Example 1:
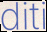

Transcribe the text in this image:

diti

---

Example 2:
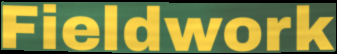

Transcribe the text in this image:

Fieldwork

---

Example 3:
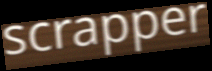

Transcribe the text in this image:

scrapper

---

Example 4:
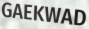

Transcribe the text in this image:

GAEKWAD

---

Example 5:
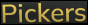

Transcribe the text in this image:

Pickers